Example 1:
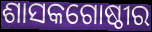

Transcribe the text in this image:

ଶାସକଗୋଷ୍ଠୀର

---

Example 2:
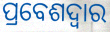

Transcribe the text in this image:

ପ୍ରବେଶଦ୍ଵାର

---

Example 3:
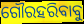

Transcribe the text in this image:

ଗୌରହରିବାବୁ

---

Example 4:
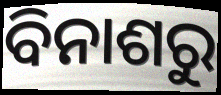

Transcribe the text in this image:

ବିନାଶରୁ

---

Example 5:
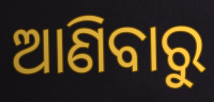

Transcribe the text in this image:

ଆଣିବାରୁ